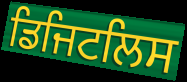
ਡਿਜਿਟਲਿਸ